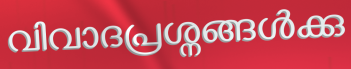
വിവാദപ്രശ്നങ്ങൾക്കു